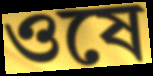
ওষে